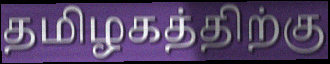
தமிழகத்திற்கு